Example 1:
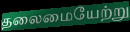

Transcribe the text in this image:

தலைமையேற்று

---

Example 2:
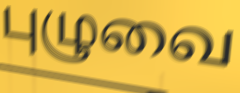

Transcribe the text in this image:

புழுவை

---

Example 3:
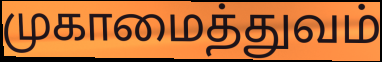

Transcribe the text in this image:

முகாமைத்துவம்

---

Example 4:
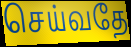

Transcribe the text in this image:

செய்வதே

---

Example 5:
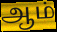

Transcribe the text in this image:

ஆம்